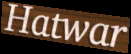
Hatwar